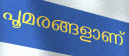
പൂമരങ്ങളാണ്